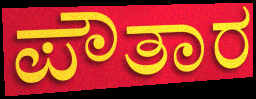
ಪೌತಾರ